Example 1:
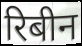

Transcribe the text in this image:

रिबीन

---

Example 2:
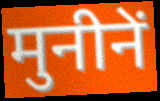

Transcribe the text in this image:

मुनीनें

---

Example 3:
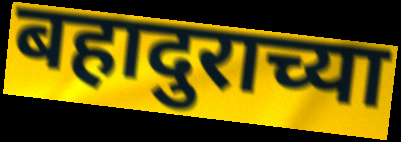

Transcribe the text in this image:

बहादुराच्या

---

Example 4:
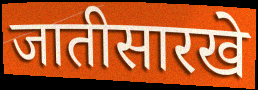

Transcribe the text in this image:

जातीसारखे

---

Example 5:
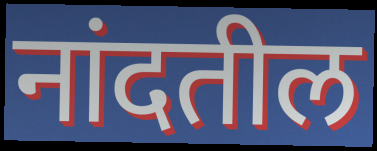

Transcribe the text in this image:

नांदतील